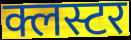
क्लस्टर